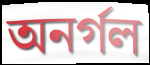
অনর্গল